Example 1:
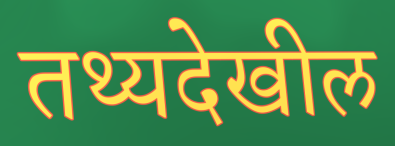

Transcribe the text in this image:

तथ्यदेखील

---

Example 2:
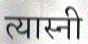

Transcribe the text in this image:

त्यास्नी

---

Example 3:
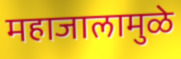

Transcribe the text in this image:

महाजालामुळे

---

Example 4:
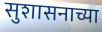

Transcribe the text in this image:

सुशासनाच्या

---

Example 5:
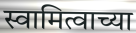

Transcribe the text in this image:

स्वामित्वाच्या